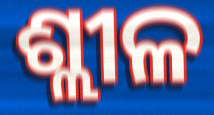
ଶ୍ଲୀଳ